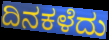
ದಿನಕಳೆದು